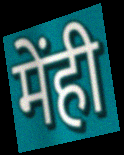
मेंही